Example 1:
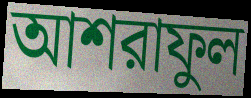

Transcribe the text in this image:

আশরাফুল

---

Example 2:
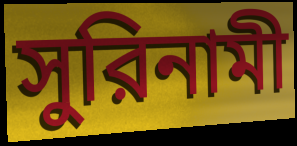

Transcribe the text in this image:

সুরিনামী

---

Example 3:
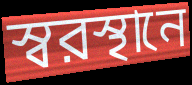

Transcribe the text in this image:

স্বরস্থানে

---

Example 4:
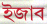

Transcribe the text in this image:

ইজাব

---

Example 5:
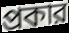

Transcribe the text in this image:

প্রকার